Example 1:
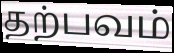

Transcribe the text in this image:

தற்பவம்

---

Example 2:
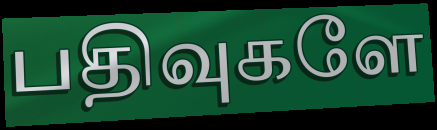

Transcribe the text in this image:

பதிவுகளே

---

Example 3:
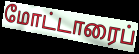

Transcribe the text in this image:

மோட்டாரைப்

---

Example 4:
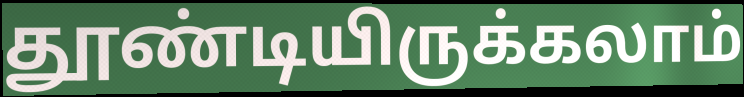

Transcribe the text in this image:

தூண்டியிருக்கலாம்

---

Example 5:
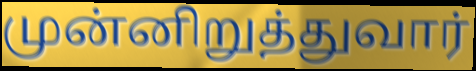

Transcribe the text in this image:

முன்னிறுத்துவார்